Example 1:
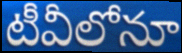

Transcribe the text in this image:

టీవీలోనూ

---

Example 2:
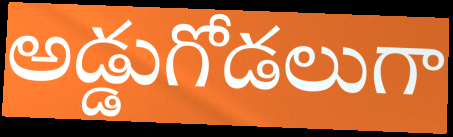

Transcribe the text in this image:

అడ్డుగోడలుగా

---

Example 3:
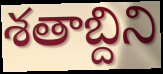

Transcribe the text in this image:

శతాబ్దిని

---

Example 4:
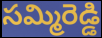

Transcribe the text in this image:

సమ్మిరెడ్డి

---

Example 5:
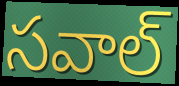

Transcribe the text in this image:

సవాల్